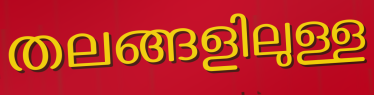
തലങ്ങളിലുള്ള